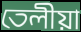
তেলীয়া